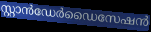
സ്റ്റാൻഡേർഡൈസേഷൻ